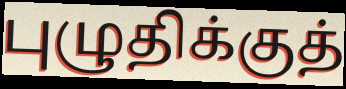
புழுதிக்குத்